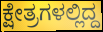
ಕ್ಷೇತ್ರಗಳಲ್ಲಿದ್ದ